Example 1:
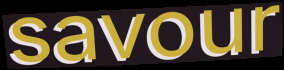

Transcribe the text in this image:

savour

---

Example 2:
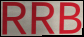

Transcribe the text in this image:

RRB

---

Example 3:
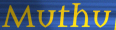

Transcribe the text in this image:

Muthu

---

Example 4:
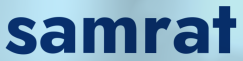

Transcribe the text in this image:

samrat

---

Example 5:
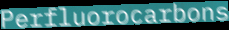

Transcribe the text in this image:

Perfluorocarbons